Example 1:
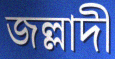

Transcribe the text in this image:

জল্লাদী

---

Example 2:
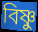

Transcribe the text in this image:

বিষ্ণু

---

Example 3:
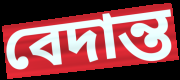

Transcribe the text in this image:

বেদান্ত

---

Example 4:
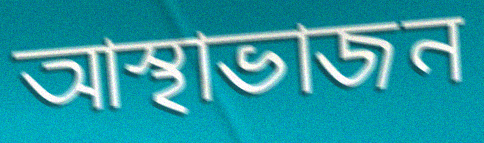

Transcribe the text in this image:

আস্থাভাজন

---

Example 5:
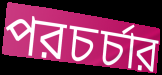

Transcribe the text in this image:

পরচর্চার